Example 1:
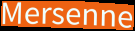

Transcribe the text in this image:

Mersenne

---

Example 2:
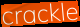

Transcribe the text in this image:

crackle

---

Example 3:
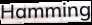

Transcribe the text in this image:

Hamming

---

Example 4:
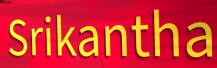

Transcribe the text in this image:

Srikantha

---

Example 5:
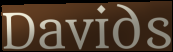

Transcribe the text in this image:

Davids